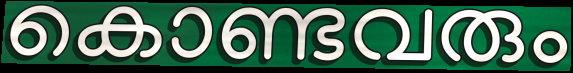
കൊണ്ടവരും